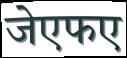
जेएफए